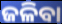
ଜଳିବା